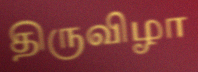
திருவிழா